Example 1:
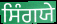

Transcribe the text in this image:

ਸਿੰਗਯੇ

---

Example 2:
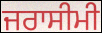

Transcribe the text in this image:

ਜਰਾਸੀਮੀ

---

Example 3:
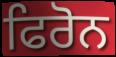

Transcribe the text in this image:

ਫਿਰੋਨ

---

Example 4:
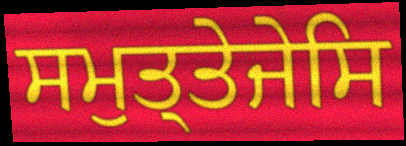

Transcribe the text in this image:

ਸਮੁਤ੍ਤੇਜੇਸਿ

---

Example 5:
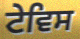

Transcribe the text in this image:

ਟੇਵਿਸ